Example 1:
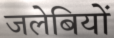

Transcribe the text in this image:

जलेबियों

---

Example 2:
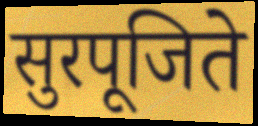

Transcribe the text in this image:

सुरपूजिते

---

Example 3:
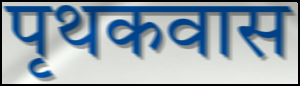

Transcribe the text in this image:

पृथकवास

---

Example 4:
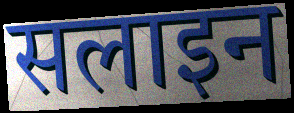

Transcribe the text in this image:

सलाइन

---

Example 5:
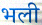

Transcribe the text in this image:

भली